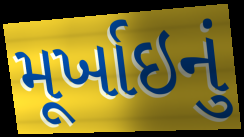
મૂર્ખાઇનું